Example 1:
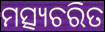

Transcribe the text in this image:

ମତ୍ସ୍ୟଚରିତ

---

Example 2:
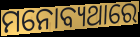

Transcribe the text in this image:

ମନୋବ୍ୟଥାରେ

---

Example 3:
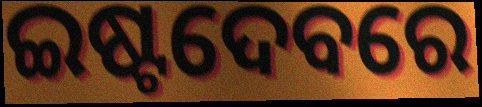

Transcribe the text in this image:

ଇଷ୍ଟଦେବରେ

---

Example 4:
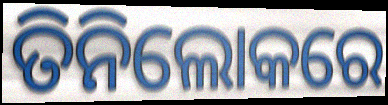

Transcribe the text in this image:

ତିନିଲୋକରେ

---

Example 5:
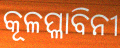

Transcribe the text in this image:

କୂଳପ୍ଳାବିନୀ